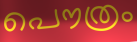
പൌത്രം